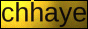
chhaye